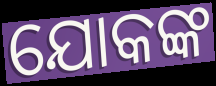
ଯୋକଙ୍କ